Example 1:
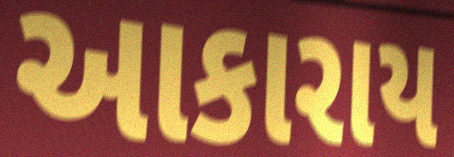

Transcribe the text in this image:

આકારાય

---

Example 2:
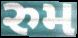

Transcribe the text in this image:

રુમ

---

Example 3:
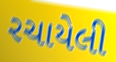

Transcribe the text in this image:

રચાયેલી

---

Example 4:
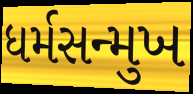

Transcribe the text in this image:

ધર્મસન્મુખ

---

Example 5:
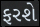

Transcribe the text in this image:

ફરશે